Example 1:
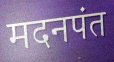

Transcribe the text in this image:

मदनपंत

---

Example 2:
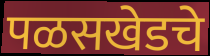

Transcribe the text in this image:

पळसखेडचे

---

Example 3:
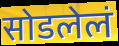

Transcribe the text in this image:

सोडलेलं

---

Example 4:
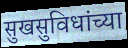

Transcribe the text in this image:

सुखसुविधांच्या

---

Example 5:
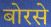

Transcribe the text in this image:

बोरसे